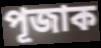
পূজাক